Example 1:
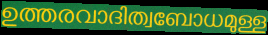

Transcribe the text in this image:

ഉത്തരവാദിത്വബോധമുള്ള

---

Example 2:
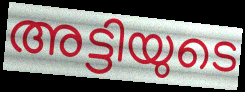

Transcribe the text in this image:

അട്ടിയുടെ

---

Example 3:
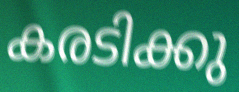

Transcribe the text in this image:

കരടിക്കു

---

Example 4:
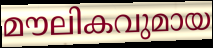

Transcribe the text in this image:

മൗലികവുമായ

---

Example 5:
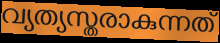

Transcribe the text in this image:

വ്യത്യസ്തരാകുന്നത്